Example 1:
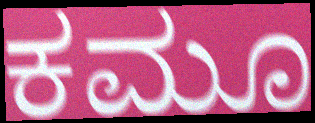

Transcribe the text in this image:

ಕಮೂ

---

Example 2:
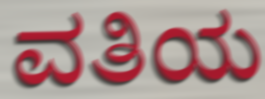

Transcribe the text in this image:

ವತಿಯ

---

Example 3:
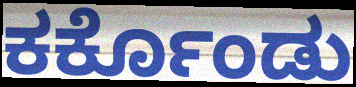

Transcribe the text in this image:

ಕರ್ಕೊಂಡು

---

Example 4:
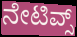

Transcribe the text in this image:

ನೇಟಿವ್ಸ್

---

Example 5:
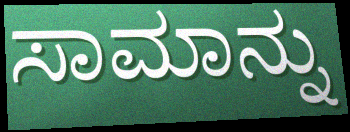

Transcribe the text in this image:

ಸಾಮಾನ್ನು